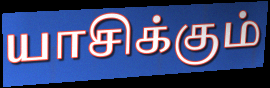
யாசிக்கும்